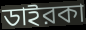
ডাইরকা